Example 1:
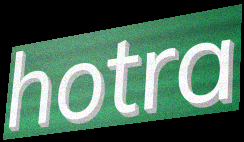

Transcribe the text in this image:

hotra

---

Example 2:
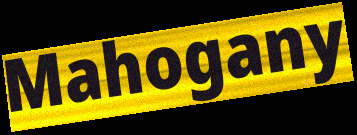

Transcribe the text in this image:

Mahogany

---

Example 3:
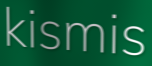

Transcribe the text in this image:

kismis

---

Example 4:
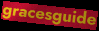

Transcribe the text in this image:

gracesguide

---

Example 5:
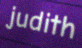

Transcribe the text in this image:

judith